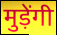
मुड़ेंगी